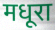
मधूरा